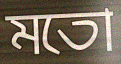
মতো